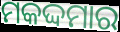
ମକଦ୍ଦମାର